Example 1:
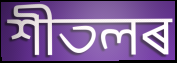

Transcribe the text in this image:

শীতলৰ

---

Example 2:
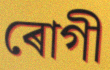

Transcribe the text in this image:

ৰোগী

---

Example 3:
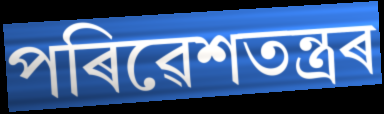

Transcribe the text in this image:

পৰিৱেশতন্ত্ৰৰ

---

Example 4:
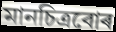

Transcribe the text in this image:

মানচিত্ৰবোৰ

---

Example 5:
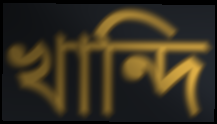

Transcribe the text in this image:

খান্দি